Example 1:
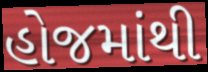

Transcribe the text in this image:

હોજમાંથી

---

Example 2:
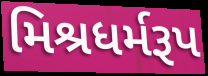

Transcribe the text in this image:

મિશ્રધર્મરૂપ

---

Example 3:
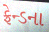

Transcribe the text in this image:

ફ્રેન્ડના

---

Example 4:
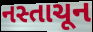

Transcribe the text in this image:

નસ્તાચૂન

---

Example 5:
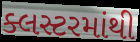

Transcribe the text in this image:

ક્લસ્ટરમાંથી